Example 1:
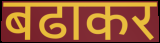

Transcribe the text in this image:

बढाकर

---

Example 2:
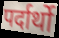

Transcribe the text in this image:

पर्दार्थो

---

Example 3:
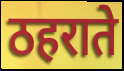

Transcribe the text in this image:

ठहराते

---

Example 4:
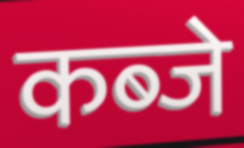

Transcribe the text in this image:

कब्‍जे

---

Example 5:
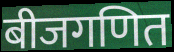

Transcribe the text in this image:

बीजगणित